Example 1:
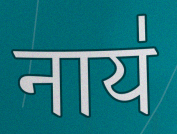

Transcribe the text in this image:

नाय॑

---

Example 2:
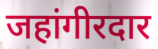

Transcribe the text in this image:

जहांगीरदार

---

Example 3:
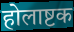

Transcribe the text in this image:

होलाष्टक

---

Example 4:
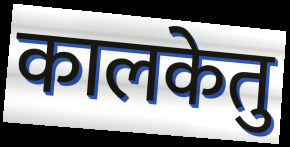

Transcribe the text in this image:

कालकेतु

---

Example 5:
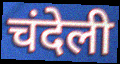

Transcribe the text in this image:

चंदेली